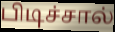
பிடிச்சால்